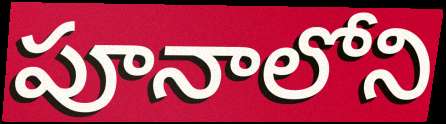
పూనాలోని